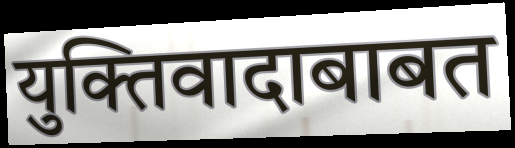
युक्तिवादाबाबत